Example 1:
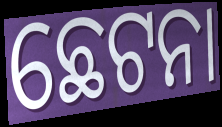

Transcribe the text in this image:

ଛେଟନା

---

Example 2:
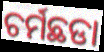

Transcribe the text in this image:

ଚର୍ମଛଡା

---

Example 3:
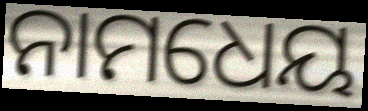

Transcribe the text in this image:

ନାମଧେୟ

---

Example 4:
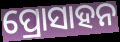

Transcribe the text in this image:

ପ୍ରୋସାହନ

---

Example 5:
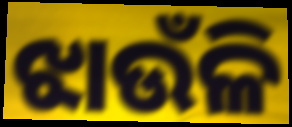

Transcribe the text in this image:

ଝାଉଁଳି